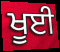
ਖੂਈ